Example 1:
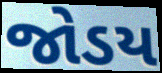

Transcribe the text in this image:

જોડય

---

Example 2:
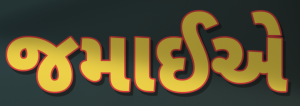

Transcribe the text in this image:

જમાઈએ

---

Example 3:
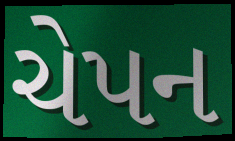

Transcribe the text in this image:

ચેપન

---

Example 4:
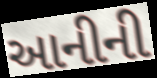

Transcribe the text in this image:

આનીની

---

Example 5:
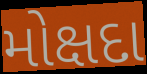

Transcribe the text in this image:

મોક્ષદા